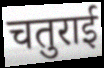
चतुराई